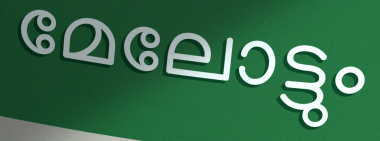
മേലോട്ടും